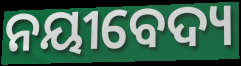
ନୟୀବେଦ୍ୟ